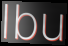
Ibu